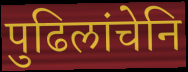
पुढिलांचेनि